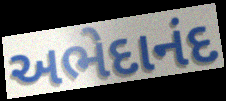
અભેદાનંદ